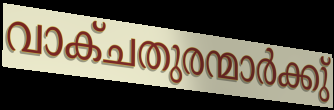
വാക്ചതുരന്മാർക്കു്